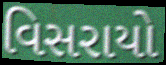
વિસરાયો